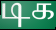
டிக